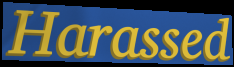
Harassed